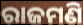
ରାଜମଣି